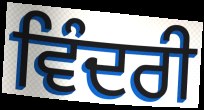
ਵਿੰਦਰੀ